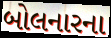
બોલનારના